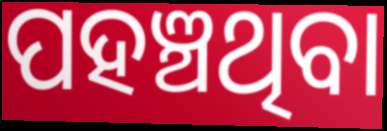
ପହଞ୍ଚଥିବା